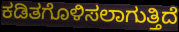
ಕಡಿತಗೊಳಿಸಲಾಗುತ್ತಿದೆ